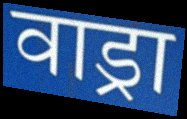
वाड्रा